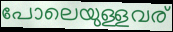
പോലെയുള്ളവര്